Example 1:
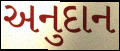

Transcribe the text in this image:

અનુદાન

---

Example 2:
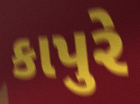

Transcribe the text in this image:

કાપુરે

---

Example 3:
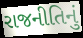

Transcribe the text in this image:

રાજનીતિનું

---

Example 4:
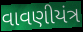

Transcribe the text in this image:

વાવણીયંત્ર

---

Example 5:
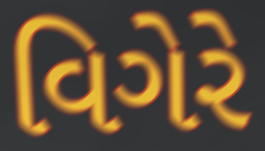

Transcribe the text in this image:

વિગેરે